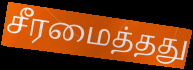
சீரமைத்தது